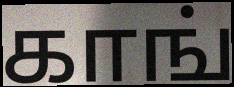
காங்